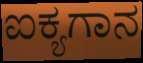
ಐಕ್ಯಗಾನ